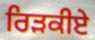
ਰਿੜਕੀਏ